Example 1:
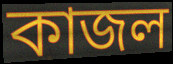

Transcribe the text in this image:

কাজল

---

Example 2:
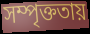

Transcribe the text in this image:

সম্পৃক্ততায়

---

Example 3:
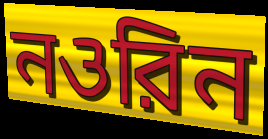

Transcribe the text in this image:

নওরিন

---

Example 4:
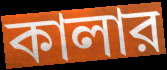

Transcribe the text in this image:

কালার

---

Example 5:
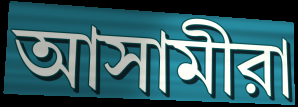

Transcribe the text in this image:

আসামীরা